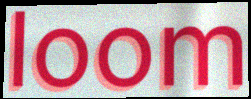
loom